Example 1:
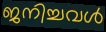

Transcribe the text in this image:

ജനിച്ചവൾ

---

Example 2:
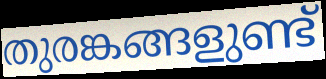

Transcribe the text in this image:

തുരങ്കങ്ങളുണ്ട്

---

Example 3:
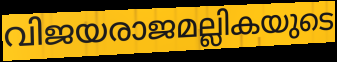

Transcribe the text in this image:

വിജയരാജമല്ലികയുടെ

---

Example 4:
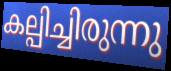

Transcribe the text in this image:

കല്പിച്ചിരുന്നു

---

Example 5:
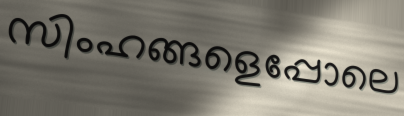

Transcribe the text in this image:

സിംഹങ്ങളെപ്പോലെ